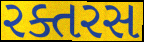
રક્તરસ